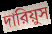
দারিয়ুস